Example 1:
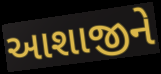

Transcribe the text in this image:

આશાજીને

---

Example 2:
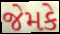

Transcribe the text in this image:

જેમકે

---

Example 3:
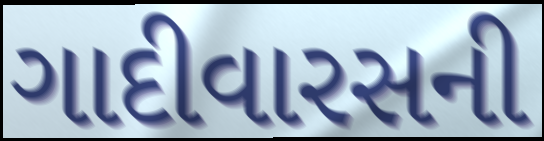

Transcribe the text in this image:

ગાદીવારસની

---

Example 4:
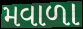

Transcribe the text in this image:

મવાળા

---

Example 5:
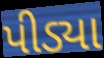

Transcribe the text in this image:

પીડ્યા